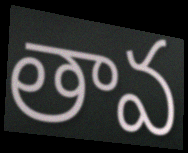
తావ